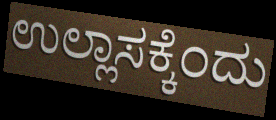
ಉಲ್ಲಾಸಕ್ಕೆಂದು